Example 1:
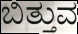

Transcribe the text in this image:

ಬಿತ್ತುವ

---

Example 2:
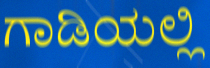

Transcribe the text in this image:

ಗಾಡಿಯಲ್ಲಿ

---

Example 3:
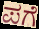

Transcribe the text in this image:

ಪಗೆ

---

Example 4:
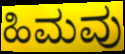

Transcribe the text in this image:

ಹಿಮವು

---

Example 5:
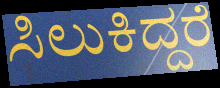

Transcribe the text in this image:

ಸಿಲುಕಿದ್ದರೆ